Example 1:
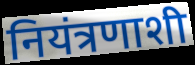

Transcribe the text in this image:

नियंत्रणाशी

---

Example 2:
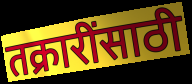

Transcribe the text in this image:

तक्रारींसाठी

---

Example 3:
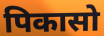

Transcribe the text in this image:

पिकासो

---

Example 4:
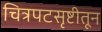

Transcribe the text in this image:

चित्रपटसृष्टीतून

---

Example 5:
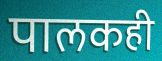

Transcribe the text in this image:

पालकही